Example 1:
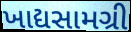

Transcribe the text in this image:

ખાદ્યસામગ્રી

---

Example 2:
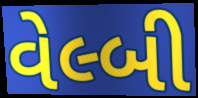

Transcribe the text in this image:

વેલ્બી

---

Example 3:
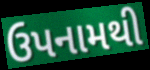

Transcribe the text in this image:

ઉપનામથી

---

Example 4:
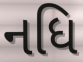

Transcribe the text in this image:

નધિ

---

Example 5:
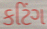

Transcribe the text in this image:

કટિંગ